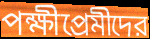
পক্ষীপ্রেমীদের